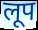
लूप